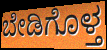
ಬೇಡಿಗೊಳ್ತ